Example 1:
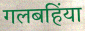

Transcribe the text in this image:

गलबहिंया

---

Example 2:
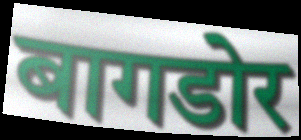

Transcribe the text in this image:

बागडोर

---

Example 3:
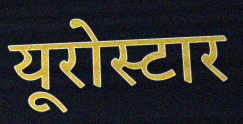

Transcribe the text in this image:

यूरोस्टार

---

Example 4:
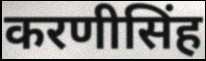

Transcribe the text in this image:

करणीसिंह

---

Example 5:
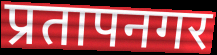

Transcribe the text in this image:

प्रतापनगर